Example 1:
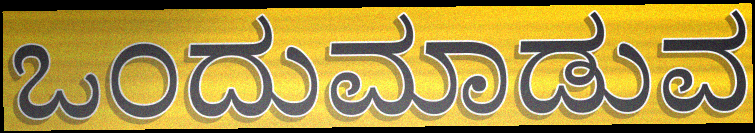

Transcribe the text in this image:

ಒಂದುಮಾಡುವ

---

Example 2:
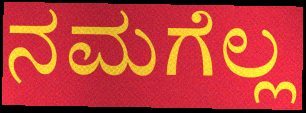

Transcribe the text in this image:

ನಮಗೆಲ್ಲ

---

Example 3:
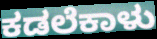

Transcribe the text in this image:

ಕಡಲೆಕಾಳು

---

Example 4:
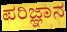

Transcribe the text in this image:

ಪರಿಜ್ಞಾನ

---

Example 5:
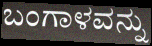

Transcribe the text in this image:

ಬಂಗಾಳವನ್ನು